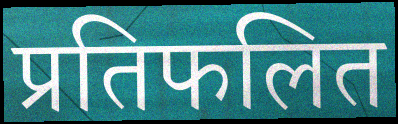
प्रतिफलित